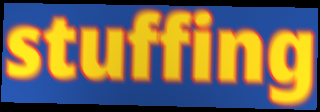
stuffing